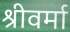
श्रीवर्मा